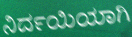
ನಿರ್ದಯಿಯಾಗಿ